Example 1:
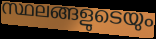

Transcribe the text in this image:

സ്ഥലങ്ങളുടെയും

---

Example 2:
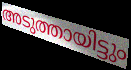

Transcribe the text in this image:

അടുത്തായിട്ടും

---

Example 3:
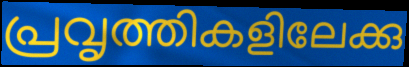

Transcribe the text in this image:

പ്രവൃത്തികളിലേക്കു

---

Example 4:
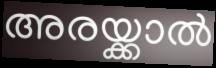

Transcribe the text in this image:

അരയ്ക്കാൽ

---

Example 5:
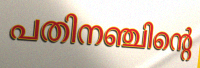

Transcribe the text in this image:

പതിനഞ്ചിന്റെ